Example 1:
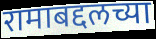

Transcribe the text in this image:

रामाबद्दलच्या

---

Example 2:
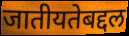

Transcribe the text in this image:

जातीयतेबद्दल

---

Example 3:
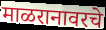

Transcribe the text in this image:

माळरानावरचे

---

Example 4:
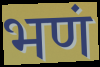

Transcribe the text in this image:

भणं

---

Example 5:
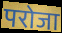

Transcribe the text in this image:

परोजा